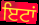
ਇਟਾਂ